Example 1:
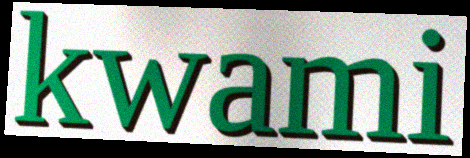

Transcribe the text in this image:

kwami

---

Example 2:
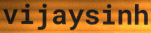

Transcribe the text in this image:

vijaysinh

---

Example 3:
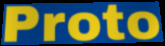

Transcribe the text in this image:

Proto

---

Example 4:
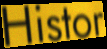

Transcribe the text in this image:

Histor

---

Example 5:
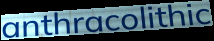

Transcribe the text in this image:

anthracolithic